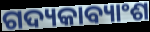
ଗଦ୍ୟକାବ୍ୟାଂଶ